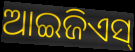
ଆଇଜିଏସ୍